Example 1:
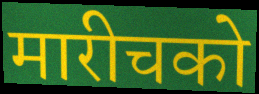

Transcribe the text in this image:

मारीचको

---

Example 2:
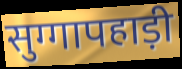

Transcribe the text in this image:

सुग्गापहाड़ी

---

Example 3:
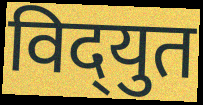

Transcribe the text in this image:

विद्‌युत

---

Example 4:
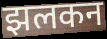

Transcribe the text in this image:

झलकन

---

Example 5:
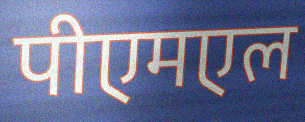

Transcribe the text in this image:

पीएमएल